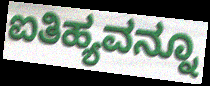
ಐತಿಹ್ಯವನ್ನೂ